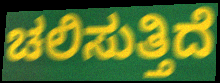
ಚಲಿಸುತ್ತಿದೆ